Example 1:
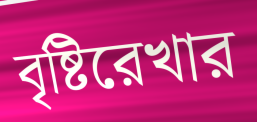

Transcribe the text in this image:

বৃষ্টিরেখার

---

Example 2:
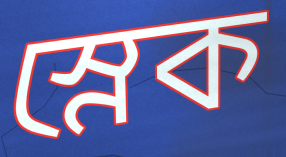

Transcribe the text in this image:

স্নেক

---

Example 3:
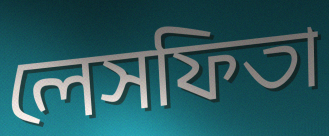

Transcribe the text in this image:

লেসফিতা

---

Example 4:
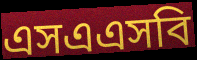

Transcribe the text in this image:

এসএএসবি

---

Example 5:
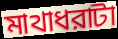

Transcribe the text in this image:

মাথাধরাটা